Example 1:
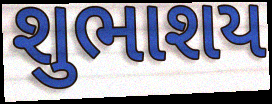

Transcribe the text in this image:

શુભાશય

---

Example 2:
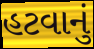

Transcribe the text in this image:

હટવાનું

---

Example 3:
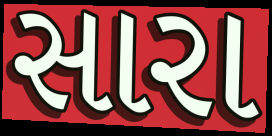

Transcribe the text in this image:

સારા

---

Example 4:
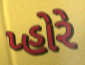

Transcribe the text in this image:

પ્હોરે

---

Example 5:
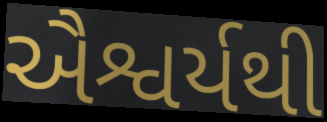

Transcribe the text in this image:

ઐશ્વર્યથી